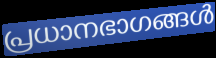
പ്രധാനഭാഗങ്ങൾ